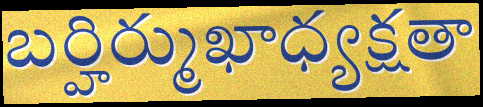
బర్హిర్ముఖాధ్యక్షతా